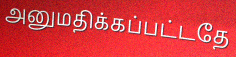
அனுமதிக்கப்பட்டதே